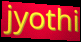
jyothi